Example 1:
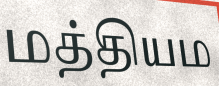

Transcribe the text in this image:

மத்தியம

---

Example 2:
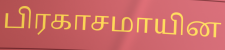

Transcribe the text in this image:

பிரகாசமாயின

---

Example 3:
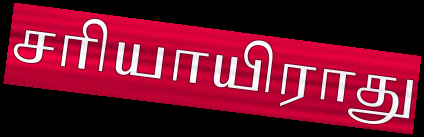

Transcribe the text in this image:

சரியாயிராது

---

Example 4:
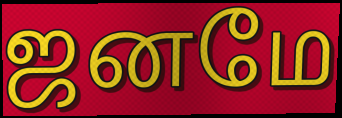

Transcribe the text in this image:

ஜனமே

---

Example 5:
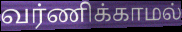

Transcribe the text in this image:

வர்ணிக்காமல்